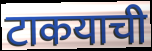
टाकयाची